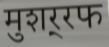
मुशर्रफ